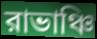
রাভাঞ্চি